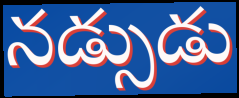
నడ్సుడు